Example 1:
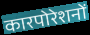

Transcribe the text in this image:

कारपोरेशनों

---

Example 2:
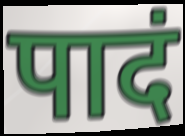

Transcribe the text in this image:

पादं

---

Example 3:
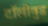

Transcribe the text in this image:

टॉलीवुड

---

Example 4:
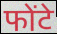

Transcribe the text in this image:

फोंटे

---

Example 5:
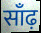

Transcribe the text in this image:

साँढ़